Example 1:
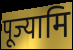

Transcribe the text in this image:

पूज्यामि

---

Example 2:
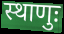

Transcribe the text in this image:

स्थाणुः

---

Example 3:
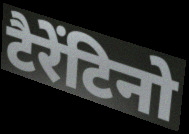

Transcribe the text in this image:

टैरेंटिनो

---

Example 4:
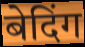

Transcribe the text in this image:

बेदिंग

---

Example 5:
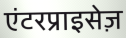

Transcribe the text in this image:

एंटरप्राइसेज़